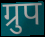
ग्रुप